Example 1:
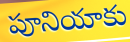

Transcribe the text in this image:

పూనియాకు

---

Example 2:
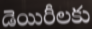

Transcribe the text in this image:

డెయిరీలకు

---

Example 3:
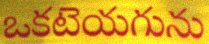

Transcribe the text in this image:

ఒకటెయగును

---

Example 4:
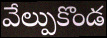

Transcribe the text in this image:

వేల్పుకొండ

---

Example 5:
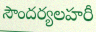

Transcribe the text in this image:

సౌందర్యలహరీ